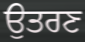
ਉਤਰਣ